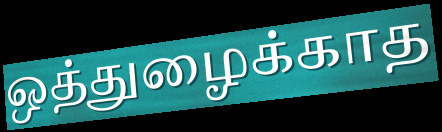
ஒத்துழைக்காத